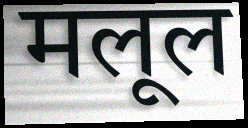
मलूल